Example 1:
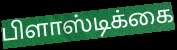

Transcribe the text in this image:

பிளாஸ்டிக்கை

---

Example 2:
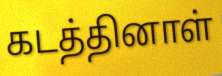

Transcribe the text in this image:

கடத்தினாள்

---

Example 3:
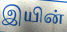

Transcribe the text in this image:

இயின்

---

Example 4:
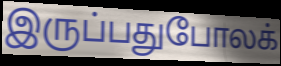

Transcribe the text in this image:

இருப்பதுபோலக்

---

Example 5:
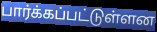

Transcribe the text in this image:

பார்க்கப்பட்டுள்ளன